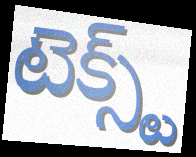
టెక్స్ట్